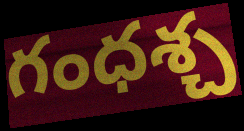
గంధశ్చ